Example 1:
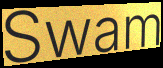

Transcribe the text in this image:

Swam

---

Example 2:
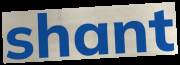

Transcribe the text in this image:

shant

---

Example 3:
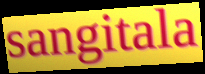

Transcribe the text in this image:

sangitala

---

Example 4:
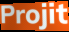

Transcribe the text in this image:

Projit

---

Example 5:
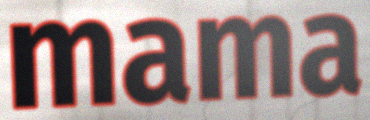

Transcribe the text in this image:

mama